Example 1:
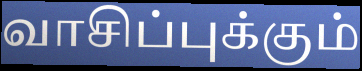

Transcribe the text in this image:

வாசிப்புக்கும்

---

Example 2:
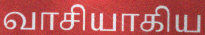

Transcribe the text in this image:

வாசியாகிய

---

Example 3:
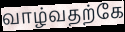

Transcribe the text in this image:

வாழ்வதற்கே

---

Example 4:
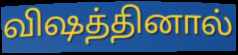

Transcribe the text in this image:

விஷத்தினால்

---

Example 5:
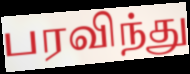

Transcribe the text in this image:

பரவிந்து